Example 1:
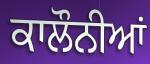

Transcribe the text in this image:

ਕਾਲੌਨੀਆਂ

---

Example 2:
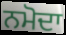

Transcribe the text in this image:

ਨਮੋਦਾ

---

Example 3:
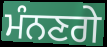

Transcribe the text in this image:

ਮੰਨਣਗੇ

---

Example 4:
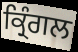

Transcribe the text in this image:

ਕ੍ਰਿੰਗਲ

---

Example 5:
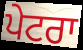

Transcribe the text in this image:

ਪੇਟਰਾ